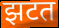
झटत